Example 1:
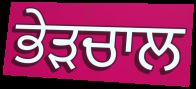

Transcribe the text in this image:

ਭੇੜਚਾਲ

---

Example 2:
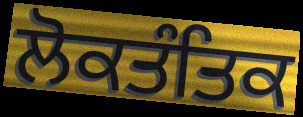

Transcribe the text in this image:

ਲੋਕਤੰਤਿਕ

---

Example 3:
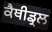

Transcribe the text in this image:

ਕੈਥੀਡ੍ਰਲ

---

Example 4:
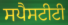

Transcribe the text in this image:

ਸਪੈਸਟੀਟੀ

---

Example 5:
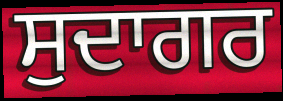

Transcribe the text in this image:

ਸੁਦਾਗਰ